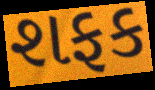
શફક